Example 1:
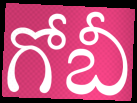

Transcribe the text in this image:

గోబీ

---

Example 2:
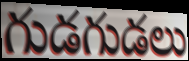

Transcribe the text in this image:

గుడగుడలు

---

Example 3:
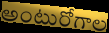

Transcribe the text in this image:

అంటురోగాల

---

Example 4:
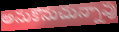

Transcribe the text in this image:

అనుకొనుచున్నావు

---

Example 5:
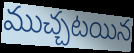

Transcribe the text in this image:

ముచ్చటయిన